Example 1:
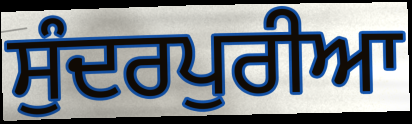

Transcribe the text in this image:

ਸੁੰਦਰਪੁਰੀਆ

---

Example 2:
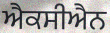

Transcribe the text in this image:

ਐਕਸੀਐਨ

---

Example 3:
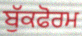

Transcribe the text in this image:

ਬੁੱਕਫੋਰਮ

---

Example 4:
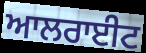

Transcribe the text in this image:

ਆਲਰਾਈਟ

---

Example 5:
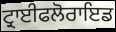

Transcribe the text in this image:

ਟ੍ਰਾਈਫਲੋਰਾਇਡ